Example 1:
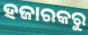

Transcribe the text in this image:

ହଜାରକରୁ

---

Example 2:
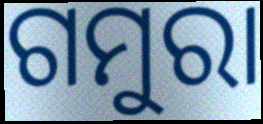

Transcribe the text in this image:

ଗମୁରା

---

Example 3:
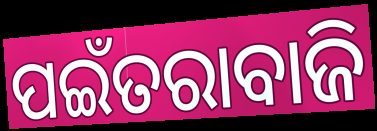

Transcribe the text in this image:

ପଇଁତରାବାଜି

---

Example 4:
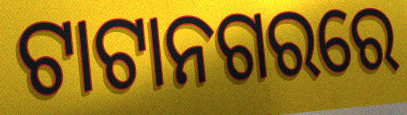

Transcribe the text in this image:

ଟାଟାନଗରରେ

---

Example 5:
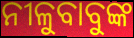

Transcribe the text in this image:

ନୀଳୁବାବୁଙ୍କ